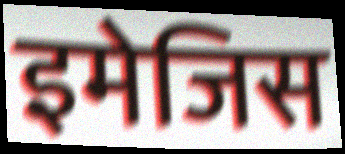
इमेजिस